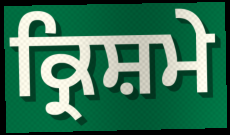
ਕ੍ਰਿਸ਼ਮੇ